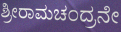
ಶ್ರೀರಾಮಚಂದ್ರನೇ